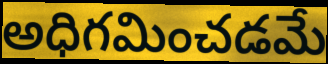
అధిగమించడమే